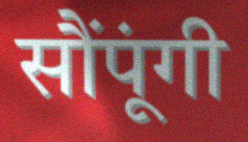
सौंपूंगी